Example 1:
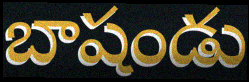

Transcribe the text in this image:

బాషండు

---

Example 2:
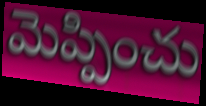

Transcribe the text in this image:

మెప్పించు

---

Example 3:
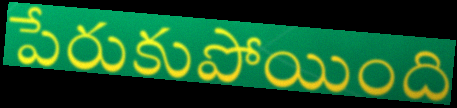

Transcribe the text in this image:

పేరుకుపోయింది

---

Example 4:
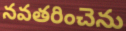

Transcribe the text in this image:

నవతరించెను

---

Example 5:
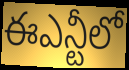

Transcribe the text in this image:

ఈఎన్టీలో